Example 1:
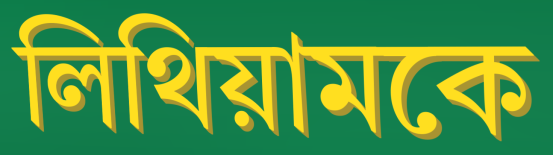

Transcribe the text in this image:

লিথিয়ামকে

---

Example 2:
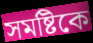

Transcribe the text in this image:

সমষ্টিকে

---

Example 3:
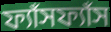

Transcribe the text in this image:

ফ্যাঁসফ্যাঁস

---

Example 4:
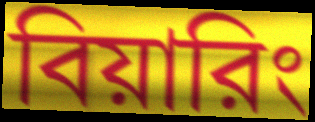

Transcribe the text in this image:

বিয়ারিং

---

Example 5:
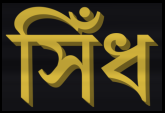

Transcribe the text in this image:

সিঁধ